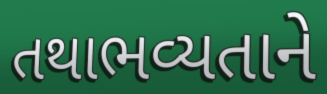
તથાભવ્યતાને